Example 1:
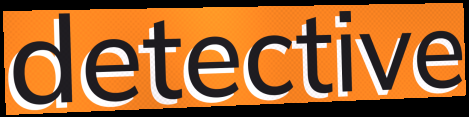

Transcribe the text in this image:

detective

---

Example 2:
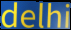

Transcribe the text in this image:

delhi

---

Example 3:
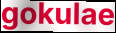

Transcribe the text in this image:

gokulae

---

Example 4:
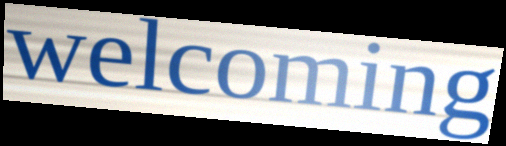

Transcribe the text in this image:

welcoming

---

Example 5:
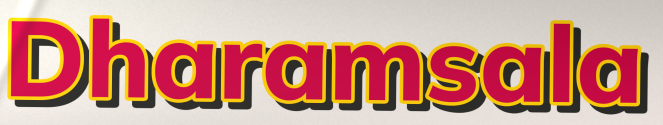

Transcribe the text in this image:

Dharamsala